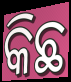
କିଛ